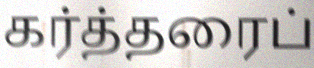
கர்த்தரைப்